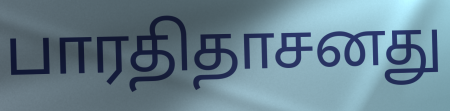
பாரதிதாசனது